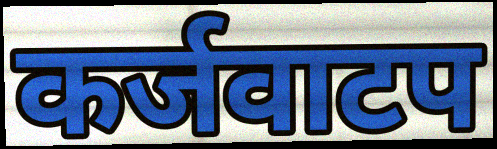
कर्जवाटप